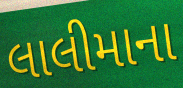
લાલીમાના